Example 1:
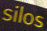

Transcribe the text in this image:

silos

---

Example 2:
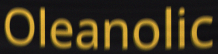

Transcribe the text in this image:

Oleanolic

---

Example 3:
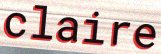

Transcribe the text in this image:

claire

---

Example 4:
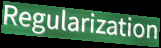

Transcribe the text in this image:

Regularization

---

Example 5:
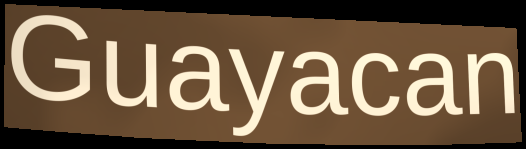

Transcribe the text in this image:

Guayacan